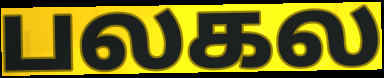
பலகல